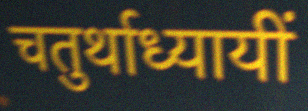
चतुर्थाध्यायीं